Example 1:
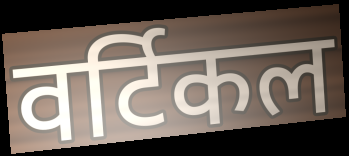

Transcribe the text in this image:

वर्टिकल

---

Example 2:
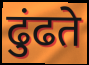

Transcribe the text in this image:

ढुंढते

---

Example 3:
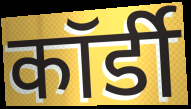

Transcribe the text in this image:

कॉर्डी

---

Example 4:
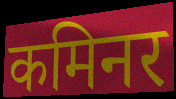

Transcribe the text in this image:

कमिनर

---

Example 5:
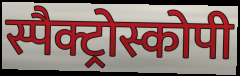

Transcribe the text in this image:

स्पैक्ट्रोस्कोपी